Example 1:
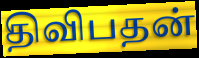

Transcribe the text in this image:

திவிபதன்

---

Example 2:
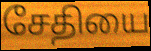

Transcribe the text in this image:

சேதியை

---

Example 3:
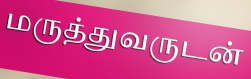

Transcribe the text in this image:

மருத்துவருடன்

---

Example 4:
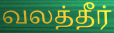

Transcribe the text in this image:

வலத்தீர்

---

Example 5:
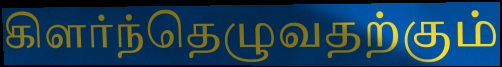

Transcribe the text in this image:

கிளர்ந்தெழுவதற்கும்